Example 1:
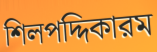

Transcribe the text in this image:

শিলপদ্দিকারম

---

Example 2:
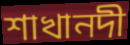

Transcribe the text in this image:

শাখানদী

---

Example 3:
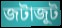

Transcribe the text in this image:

জটাজূট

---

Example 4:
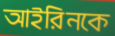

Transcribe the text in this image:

আইরিনকে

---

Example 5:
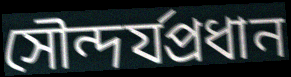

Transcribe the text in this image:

সৌন্দর্যপ্রধান